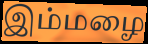
இம்மழை